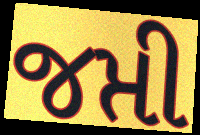
જપ્તી